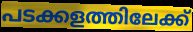
പടക്കളത്തിലേക്ക്